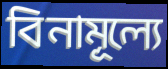
বিনামূল্যে